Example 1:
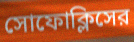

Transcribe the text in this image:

সোফোক্লিসের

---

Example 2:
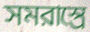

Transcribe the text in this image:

সমরাস্ত্রে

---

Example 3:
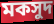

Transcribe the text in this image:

মকসুদ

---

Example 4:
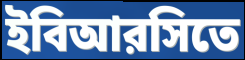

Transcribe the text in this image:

ইবিআরসিতে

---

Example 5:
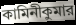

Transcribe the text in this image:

কামিনীকুমার